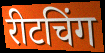
रीटचिंग